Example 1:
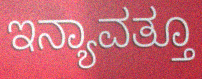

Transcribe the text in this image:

ಇನ್ಯಾವತ್ತೂ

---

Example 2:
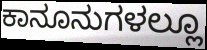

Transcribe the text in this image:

ಕಾನೂನುಗಳಲ್ಲೂ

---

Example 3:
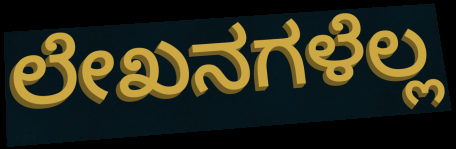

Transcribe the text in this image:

ಲೇಖನಗಳೆಲ್ಲ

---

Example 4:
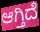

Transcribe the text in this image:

ಆಗ್ತಿದೆ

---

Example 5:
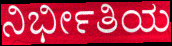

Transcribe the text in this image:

ನಿರ್ಭೀತಿಯ